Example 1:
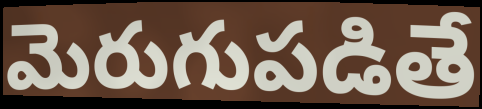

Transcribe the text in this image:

మెరుగుపడితే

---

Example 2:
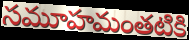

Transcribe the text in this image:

సమూహమంతటికి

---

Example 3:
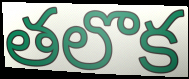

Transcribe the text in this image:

తలొక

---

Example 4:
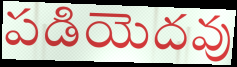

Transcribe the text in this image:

పడియెదవు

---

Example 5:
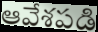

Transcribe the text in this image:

ఆవేశపడి